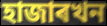
হাজাৰখন